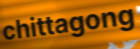
chittagong